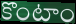
కొంటాం